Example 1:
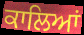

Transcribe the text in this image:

ਕਾਲਿਆਂ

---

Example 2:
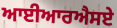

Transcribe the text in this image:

ਆਈਆਰਐਸਏ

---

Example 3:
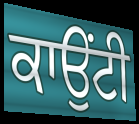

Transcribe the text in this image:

ਕਾਉਂਟੀ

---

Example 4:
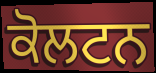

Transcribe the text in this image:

ਕੋਲਟਨ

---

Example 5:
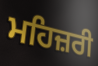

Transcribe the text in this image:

ਮਹਿਜ਼ਰੀ